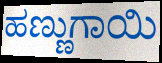
ಹಣ್ಣುಗಾಯಿ